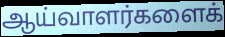
ஆய்வாளர்களைக்